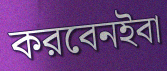
করবেনইবা